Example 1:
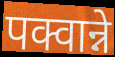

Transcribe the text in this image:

पक्वान्ने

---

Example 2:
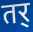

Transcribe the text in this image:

तर्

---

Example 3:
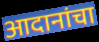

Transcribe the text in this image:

आदानांचा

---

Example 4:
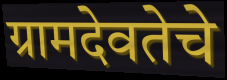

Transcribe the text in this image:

ग्रामदेवतेचे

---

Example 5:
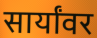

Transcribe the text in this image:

सार्यांवर